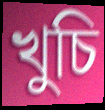
খুচি